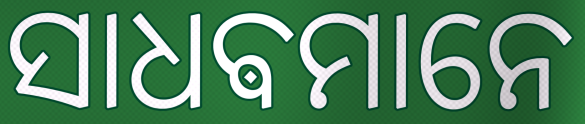
ସାଧଵମାନେ